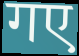
गए